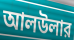
আলউলার